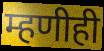
म्हणीही